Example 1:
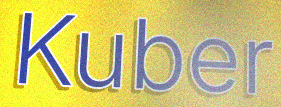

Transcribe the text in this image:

Kuber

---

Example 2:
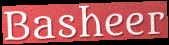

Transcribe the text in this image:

Basheer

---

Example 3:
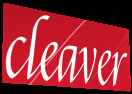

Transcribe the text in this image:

cleaver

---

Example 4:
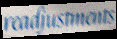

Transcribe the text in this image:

readjustments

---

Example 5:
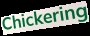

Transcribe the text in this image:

Chickering